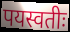
पयस्वतीः